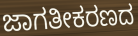
ಜಾಗತೀಕರಣದ